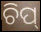
ଚିପ୍